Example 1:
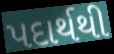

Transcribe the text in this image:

પદાર્થથી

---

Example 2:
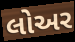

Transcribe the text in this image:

લોઅર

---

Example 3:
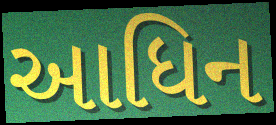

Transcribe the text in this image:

આધિન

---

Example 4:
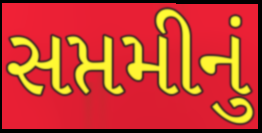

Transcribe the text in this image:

સપ્તમીનું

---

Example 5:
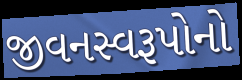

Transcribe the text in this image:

જીવનસ્વરૂપોનો